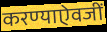
करण्याऐवजीं